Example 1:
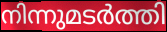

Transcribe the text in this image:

നിന്നുമടർത്തി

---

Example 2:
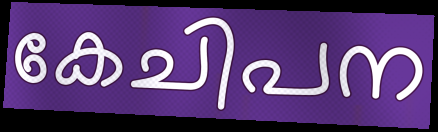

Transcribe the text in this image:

കേചിപന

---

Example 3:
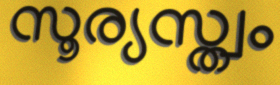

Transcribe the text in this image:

സൂര്യസ്ത്വം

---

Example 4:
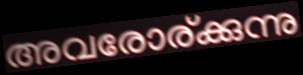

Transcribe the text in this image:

അവരോര്ക്കുന്നു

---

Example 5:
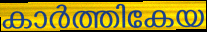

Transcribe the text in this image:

കാർത്തികേയ